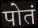
पोतं